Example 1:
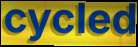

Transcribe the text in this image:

cycled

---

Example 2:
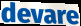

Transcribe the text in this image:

devare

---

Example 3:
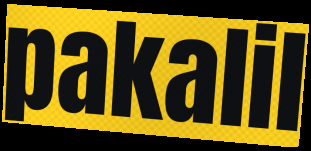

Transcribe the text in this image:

pakalil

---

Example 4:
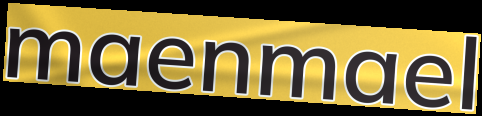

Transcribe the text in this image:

maenmael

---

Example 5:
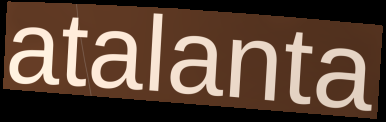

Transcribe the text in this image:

atalanta